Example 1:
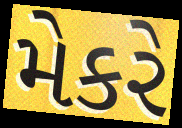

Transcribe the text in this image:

મેકરે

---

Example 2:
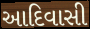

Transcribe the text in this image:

આદિવાસી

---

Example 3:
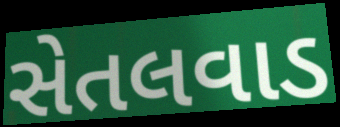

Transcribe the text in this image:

સેતલવાડ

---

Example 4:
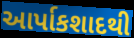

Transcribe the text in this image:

આર્પાકશાદથી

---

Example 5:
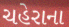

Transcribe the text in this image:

ચહેરાના